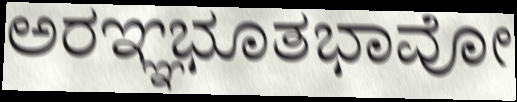
ಅರಞ್ಞಭೂತಭಾವೋ